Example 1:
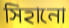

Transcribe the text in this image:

সিহানো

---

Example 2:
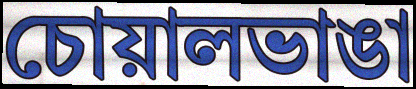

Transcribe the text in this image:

চোয়ালভাঙা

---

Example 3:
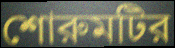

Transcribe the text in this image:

শোরুমটির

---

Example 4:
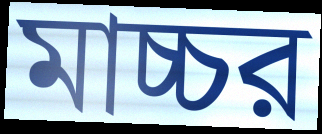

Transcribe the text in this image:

মাচ্চর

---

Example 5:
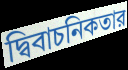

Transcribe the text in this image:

দ্বিবাচনিকতার